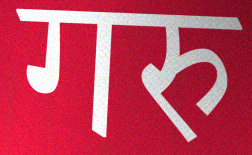
गरु